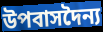
উপবাসদৈন্য